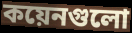
কয়েনগুলো